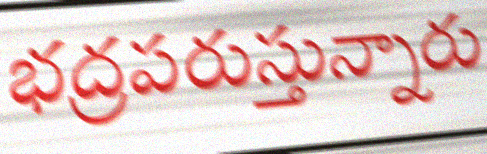
భద్రపరుస్తున్నారు